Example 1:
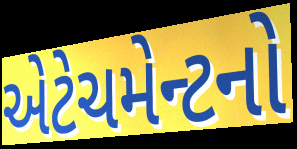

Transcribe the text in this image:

એટેચમેન્ટનો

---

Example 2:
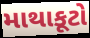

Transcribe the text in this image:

માથાકૂટો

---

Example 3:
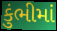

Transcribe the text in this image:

કુંભીમાં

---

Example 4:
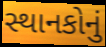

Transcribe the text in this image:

સ્થાનકોનું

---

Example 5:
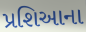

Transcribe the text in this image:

પ્રશિઆના